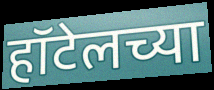
हॉटेलच्या